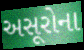
અસૂરોના